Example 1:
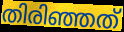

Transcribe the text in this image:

തിരിഞ്ഞത്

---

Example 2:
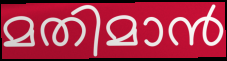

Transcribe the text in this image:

മതിമാൻ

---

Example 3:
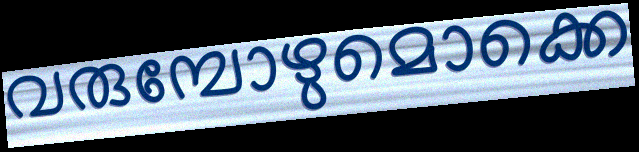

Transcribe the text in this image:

വരുമ്പോഴുമൊക്കെ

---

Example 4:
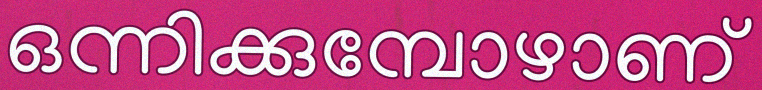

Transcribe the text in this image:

ഒന്നിക്കുമ്പോഴാണ്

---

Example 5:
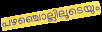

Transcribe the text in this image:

പഴഞ്ചൊല്ലിലൂടെയും